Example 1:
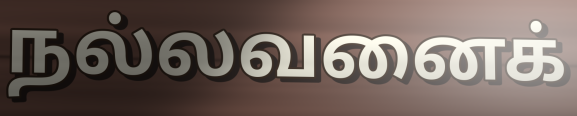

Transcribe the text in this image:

நல்லவனைக்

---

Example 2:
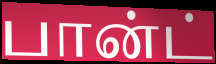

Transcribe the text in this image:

பான்ட்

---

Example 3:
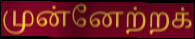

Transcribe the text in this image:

முன்னேற்றக்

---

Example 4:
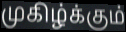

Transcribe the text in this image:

முகிழ்க்கும்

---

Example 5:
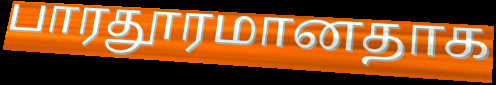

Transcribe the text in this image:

பாரதூரமானதாக